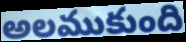
అలముకుంది